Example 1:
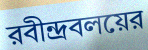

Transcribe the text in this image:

রবীন্দ্রবলয়ের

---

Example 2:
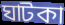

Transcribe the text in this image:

ঘাটকা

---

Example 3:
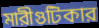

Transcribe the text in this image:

মারীগুটিকার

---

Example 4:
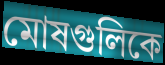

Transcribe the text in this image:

মোষগুলিকে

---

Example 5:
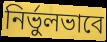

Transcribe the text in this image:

নির্ভুলভাবে